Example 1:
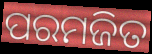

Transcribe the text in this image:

ପରମଜିତ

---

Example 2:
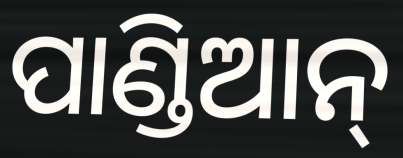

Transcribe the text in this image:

ପାଣ୍ଡିଆନ୍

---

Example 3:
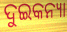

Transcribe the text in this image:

ଦୁଇକନ୍ୟା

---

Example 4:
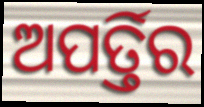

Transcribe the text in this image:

ଅପର୍ତ୍ତିର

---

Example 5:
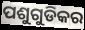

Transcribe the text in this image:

ପଶୁଗୁଡିକର